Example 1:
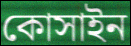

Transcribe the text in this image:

কোসাইন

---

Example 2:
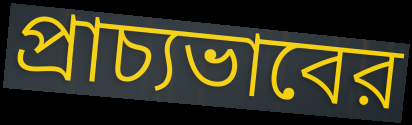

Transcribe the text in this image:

প্রাচ্যভাবের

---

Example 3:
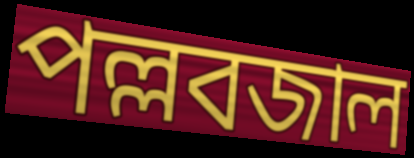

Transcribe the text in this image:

পল্লবজাল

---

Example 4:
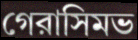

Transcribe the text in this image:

গেরাসিমভ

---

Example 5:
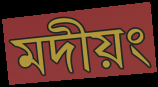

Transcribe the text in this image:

মদীয়ং